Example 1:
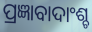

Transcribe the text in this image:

ପ୍ରଜ୍ଞାବାଦାଂଶ୍ଚ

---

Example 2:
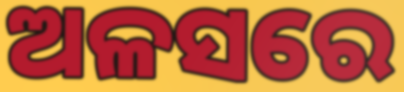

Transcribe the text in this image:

ଅଳସରେ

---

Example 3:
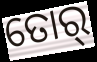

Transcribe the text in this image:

ତୋର୍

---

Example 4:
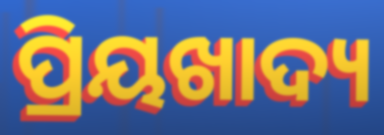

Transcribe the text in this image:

ପ୍ରିୟଖାଦ୍ୟ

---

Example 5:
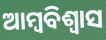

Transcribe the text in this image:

ଆମ୍ବବିଶ୍ଵାସ